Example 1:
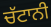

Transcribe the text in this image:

ਚੱਟਾਨੀ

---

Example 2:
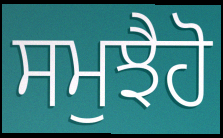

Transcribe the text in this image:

ਸਮੁਝੈਹੋ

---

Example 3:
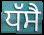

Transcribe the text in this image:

ਧੱਸੈ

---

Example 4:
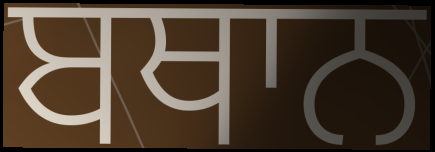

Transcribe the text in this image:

ਬਥਾਨ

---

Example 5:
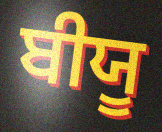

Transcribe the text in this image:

ਬੀਯੂ